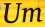
Um